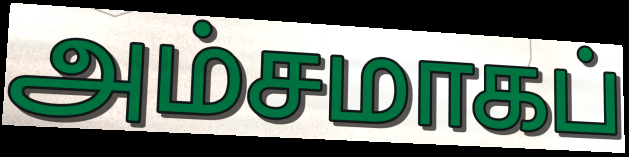
அம்சமாகப்